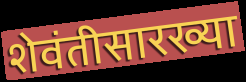
शेवंतीसारख्या